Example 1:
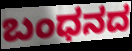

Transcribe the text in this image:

ಬಂಧನದ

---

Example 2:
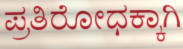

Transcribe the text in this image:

ಪ್ರತಿರೋಧಕ್ಕಾಗಿ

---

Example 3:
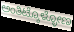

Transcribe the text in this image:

ಅಂತಿಟ್ಕೊಳ್ಳೋಣ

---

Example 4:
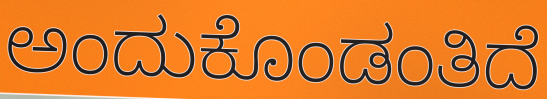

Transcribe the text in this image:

ಅಂದುಕೊಂಡಂತಿದೆ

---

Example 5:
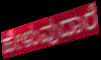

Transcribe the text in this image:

ಹೇಳುವುದಾರೆ